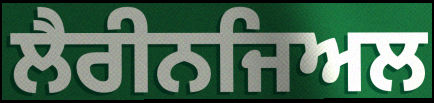
ਲੈਰੀਨਜਿਅਲ